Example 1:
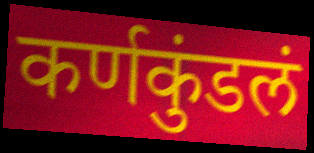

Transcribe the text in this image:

कर्णकुंडलं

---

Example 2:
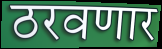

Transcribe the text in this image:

ठरवणार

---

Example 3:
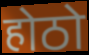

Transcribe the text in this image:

होठो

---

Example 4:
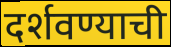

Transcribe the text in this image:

दर्शवण्याची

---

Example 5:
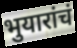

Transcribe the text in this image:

भुयारांचं